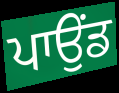
ਪਾਉਂਡ